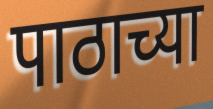
पाठाच्या